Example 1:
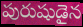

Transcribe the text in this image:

పురుషుడైన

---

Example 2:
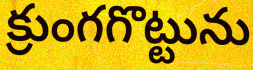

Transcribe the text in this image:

క్రుంగగొట్టును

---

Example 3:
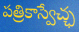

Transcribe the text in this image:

పత్రికాస్వేచ్ఛ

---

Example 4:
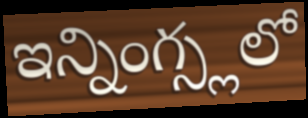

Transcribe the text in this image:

ఇన్నింగ్స్లలో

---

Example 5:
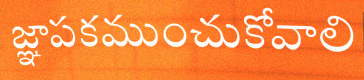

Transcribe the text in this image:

జ్ఞాపకముంచుకోవాలి